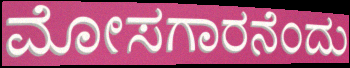
ಮೋಸಗಾರನೆಂದು